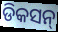
ଡିକସନ୍